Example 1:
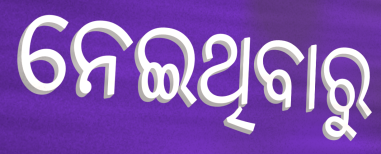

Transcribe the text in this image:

ନେଇଥିବାରୁ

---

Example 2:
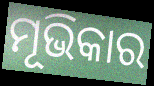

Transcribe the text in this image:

ମୂଭିକାର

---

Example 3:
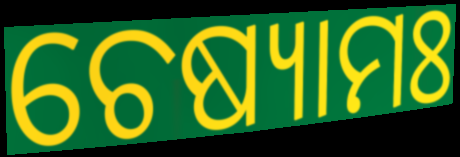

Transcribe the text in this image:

ଚେଷ୍ୟାମଃ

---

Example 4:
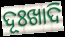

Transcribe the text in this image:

ଦୂଃଖାଦି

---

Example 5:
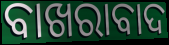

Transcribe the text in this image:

ବାଖରାବାଦ